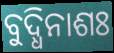
ବୁଦ୍ଧିନାଶଃ